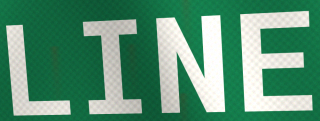
LINE